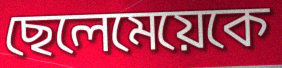
ছেলেমেয়েকে